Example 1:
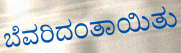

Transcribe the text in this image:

ಬೆವರಿದಂತಾಯಿತು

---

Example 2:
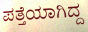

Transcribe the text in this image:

ಪತ್ತೆಯಾಗಿದ್ದ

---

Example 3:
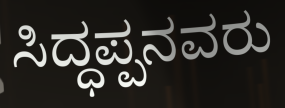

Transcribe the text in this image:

ಸಿದ್ಧಪ್ಪನವರು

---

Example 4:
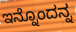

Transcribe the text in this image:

ಇನ್ನೊಂದನ್ನ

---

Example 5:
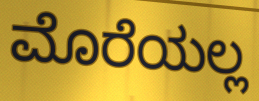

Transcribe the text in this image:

ಮೊರೆಯಲ್ಲ